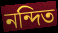
নন্দিত